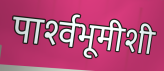
पार्श्वभूमीशी